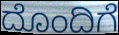
ದೊಂದಿಗೆ